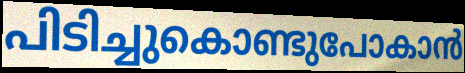
പിടിച്ചുകൊണ്ടുപോകാൻ